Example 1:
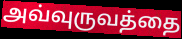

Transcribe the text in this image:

அவ்வுருவத்தை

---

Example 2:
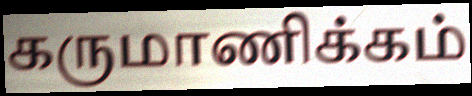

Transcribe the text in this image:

கருமாணிக்கம்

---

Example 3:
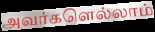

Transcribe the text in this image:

அவர்களெல்லாம்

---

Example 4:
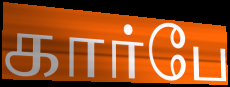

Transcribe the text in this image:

கார்பே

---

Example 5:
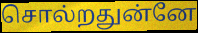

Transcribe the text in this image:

சொல்றதுன்னே